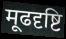
मूढदृष्टि